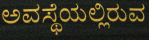
ಅವಸ್ಥೆಯಲ್ಲಿರುವ